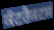
ਕੰਟਰੈਕਟਸ